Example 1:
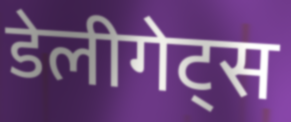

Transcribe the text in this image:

डेलीगेट्स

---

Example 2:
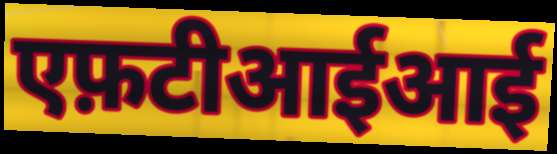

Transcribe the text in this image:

एफ़टीआईआई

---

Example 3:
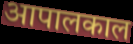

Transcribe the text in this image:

आपालकाल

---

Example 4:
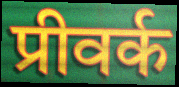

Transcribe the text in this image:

प्रीवर्क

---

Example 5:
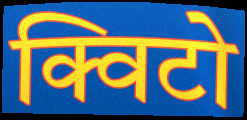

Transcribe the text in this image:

क्विटो